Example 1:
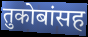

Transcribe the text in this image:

तुकोबांसह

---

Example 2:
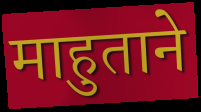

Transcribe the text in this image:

माहुताने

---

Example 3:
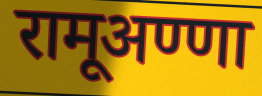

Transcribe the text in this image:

रामूअण्णा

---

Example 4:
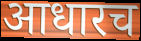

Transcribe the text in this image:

आधारच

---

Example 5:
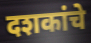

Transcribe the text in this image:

दशकांचे